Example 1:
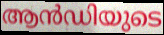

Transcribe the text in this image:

ആൻഡിയുടെ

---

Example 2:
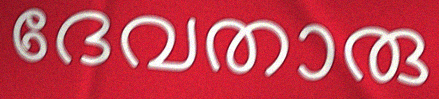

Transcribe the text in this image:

ദേവതാരു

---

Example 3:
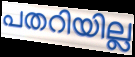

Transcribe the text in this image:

പതറിയില്ല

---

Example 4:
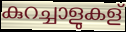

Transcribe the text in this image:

കുറച്ചാളുകള്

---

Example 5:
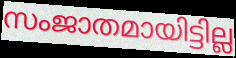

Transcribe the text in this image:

സംജാതമായിട്ടില്ല